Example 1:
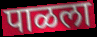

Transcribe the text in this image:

पाळला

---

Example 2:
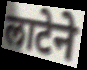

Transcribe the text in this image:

लाटेने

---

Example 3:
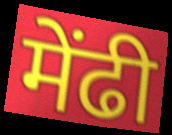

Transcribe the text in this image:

मेंढी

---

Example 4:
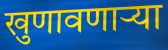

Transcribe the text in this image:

खुणावणाऱ्या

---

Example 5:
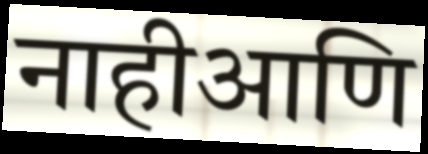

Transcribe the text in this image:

नाहीआणि